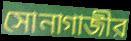
সোনাগাজীর